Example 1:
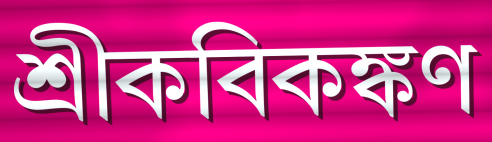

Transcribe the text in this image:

শ্রীকবিকঙ্কণ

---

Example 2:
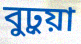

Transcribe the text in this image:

বুঢ়ুয়া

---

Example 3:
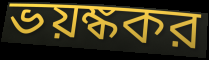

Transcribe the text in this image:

ভয়ঙ্ককর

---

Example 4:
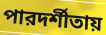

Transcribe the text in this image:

পারদর্শীতায়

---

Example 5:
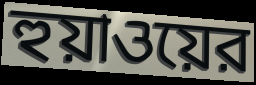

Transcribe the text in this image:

হুয়াওয়ের